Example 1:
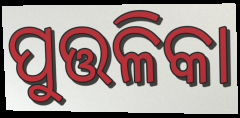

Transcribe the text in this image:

ପୁତ୍ତଳିକା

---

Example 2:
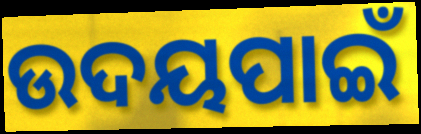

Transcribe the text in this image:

ଉଦୟପାଇଁ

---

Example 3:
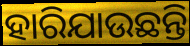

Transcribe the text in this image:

ହାରିଯାଉଛନ୍ତି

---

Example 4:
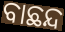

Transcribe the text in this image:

ବାଛନ୍ଦ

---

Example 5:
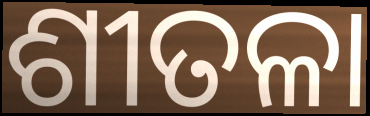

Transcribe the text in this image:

ଶୀତଳା